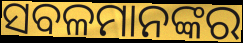
ସବଳମାନଙ୍କର